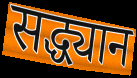
सद्ध्यान